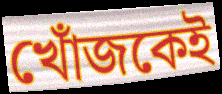
খোঁজকেই